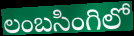
లంబసింగిలో